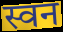
स्वन